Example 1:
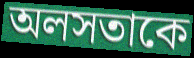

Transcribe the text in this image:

অলসতাকে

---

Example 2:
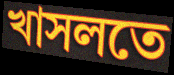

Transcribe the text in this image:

খাসলতে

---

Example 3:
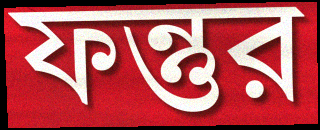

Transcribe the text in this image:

ফন্তুর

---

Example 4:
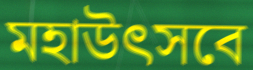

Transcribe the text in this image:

মহাউৎসবে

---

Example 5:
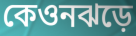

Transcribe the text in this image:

কেওনঝড়ে